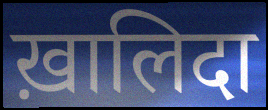
ख़ालिदा